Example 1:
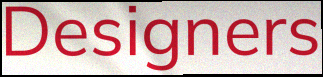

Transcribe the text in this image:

Designers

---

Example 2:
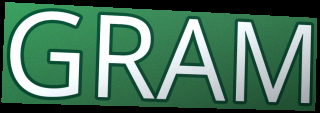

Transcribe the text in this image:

GRAM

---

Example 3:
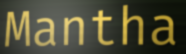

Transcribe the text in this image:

Mantha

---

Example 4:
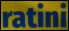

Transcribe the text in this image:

ratini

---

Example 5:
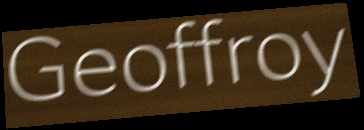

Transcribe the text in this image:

Geoffroy